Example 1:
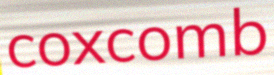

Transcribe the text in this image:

coxcomb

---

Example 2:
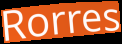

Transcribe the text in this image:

Rorres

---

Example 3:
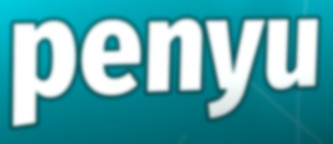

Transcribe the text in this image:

penyu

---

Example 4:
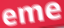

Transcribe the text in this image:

eme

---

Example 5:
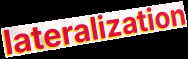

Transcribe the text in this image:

lateralization